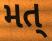
મત્